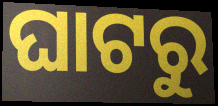
ଘାଟରୁ